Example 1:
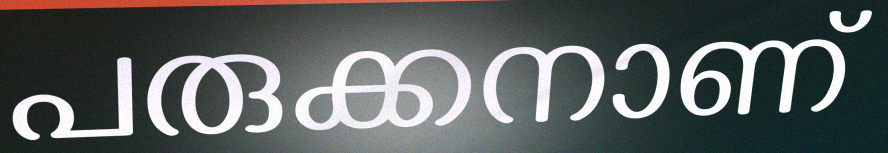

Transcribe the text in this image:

പരുക്കനാണ്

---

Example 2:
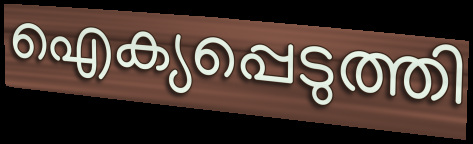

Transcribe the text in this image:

ഐക്യപ്പെടുത്തി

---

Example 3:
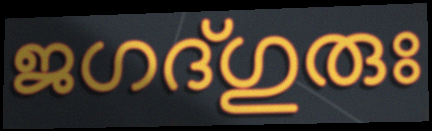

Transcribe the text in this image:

ജഗദ്ഗുരുഃ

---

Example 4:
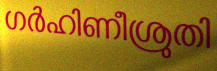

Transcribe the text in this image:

ഗർഹിണീശ്രുതി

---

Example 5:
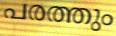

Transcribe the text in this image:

പരത്തും